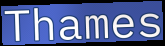
Thames